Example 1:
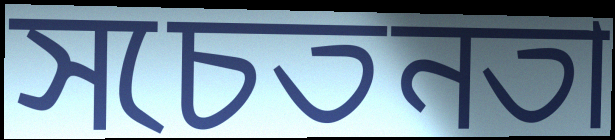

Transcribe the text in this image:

সচেতনতা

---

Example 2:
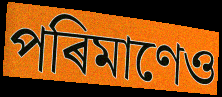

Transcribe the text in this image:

পৰিমাণেও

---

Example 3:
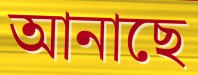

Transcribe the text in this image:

আনাছে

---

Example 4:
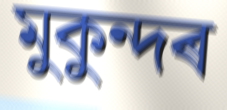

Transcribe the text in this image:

মুকুন্দৰ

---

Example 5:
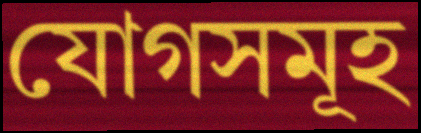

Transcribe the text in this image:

যোগসমূহ